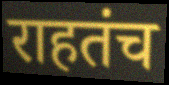
राहतंच